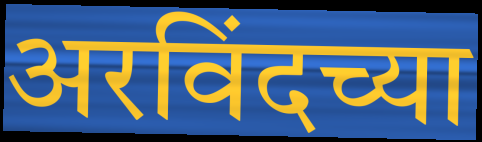
अरविंदच्या